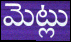
మెట్లు